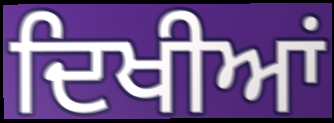
ਦਿਖੀਆਂ